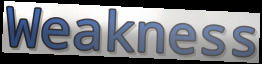
Weakness